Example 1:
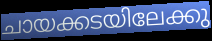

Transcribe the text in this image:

ചായക്കടയിലേക്കു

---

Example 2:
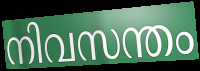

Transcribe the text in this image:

നിവസന്തം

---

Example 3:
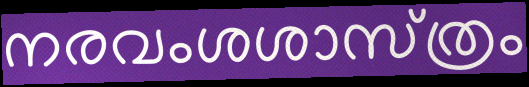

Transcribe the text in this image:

നരവംശശാസ്‌ത്രം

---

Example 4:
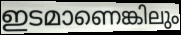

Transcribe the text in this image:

ഇടമാണെങ്കിലും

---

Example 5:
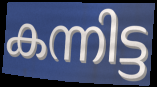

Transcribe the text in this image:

കന്നിട്ട